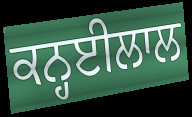
ਕਨ੍ਹਈਲਾਲ